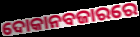
ଦୋକାନବଜାରରେ